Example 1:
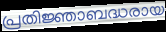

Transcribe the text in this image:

പ്രതിജ്ഞാബദ്ധരായ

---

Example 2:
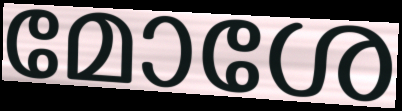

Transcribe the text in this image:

മോശേ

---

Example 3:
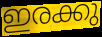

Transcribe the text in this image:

ഇരക്കു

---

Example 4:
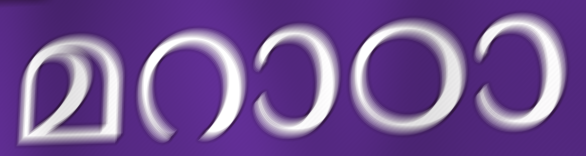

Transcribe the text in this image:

മറാഠാ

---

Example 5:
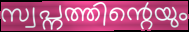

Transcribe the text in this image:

സ്വപ്നത്തിന്റെയും